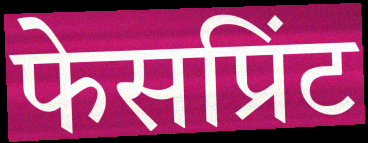
फेसप्रिंट